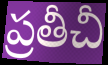
ప్రతీచీ